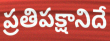
ప్రతిపక్షానిదే